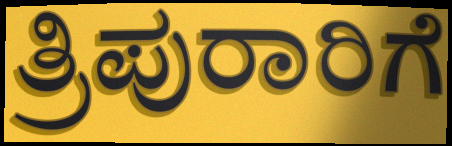
ತ್ರಿಪುರಾರಿಗೆ